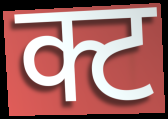
क्ट